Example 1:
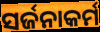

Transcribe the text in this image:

ସର୍ଜନାକର୍ମ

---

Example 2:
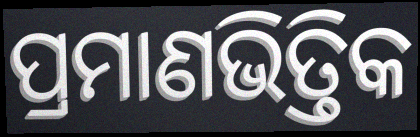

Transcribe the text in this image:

ପ୍ରମାଣଭିତ୍ତିକ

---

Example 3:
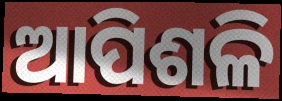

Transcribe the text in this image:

ଆପିଶଳି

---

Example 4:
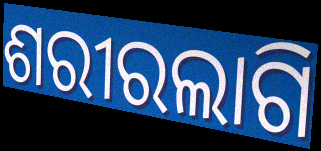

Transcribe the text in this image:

ଶରୀରଲାଗି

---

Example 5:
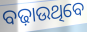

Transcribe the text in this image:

ବଢ଼ାଉଥିବେ